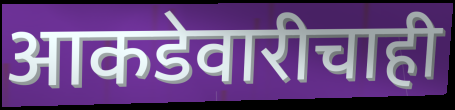
आकडेवारीचाही